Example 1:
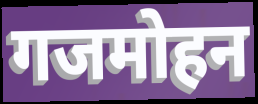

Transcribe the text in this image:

गजमोहन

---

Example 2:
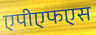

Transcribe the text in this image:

एपीएफएस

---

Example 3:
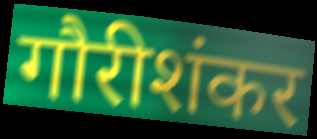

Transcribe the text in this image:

गौरीशंकर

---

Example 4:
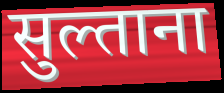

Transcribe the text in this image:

सुल्ताना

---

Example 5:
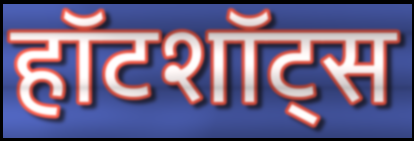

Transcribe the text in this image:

हॉटशॉट्स